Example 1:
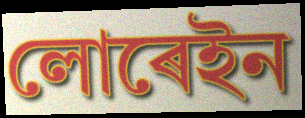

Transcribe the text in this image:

লোৰেইন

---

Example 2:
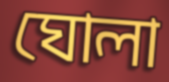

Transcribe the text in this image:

ঘোলা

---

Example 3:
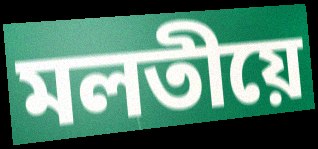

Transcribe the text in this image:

মলতীয়ে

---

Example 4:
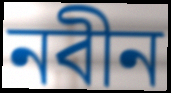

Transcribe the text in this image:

নবীন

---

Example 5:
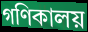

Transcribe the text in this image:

গণিকালয়